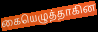
கையெழுத்தாகின